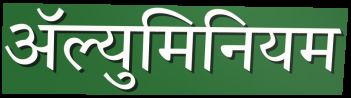
ॲल्युमिनियम